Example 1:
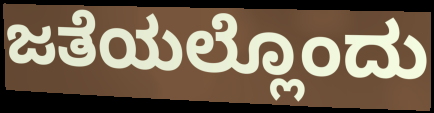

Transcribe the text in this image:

ಜತೆಯಲ್ಲೊಂದು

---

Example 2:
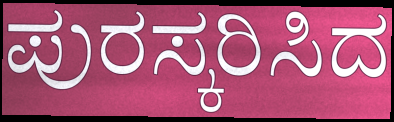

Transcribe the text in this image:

ಪುರಸ್ಕರಿಸಿದ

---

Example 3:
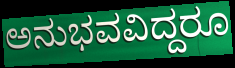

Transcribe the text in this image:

ಅನುಭವವಿದ್ದರೂ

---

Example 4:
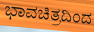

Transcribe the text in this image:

ಭಾವಚಿತ್ರದಿಂದ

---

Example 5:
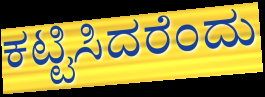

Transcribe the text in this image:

ಕಟ್ಟಿಸಿದರೆಂದು